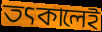
তৎকালেই